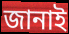
জানাই